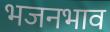
भजनभाव